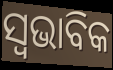
ସ୍ଵଭାବିକ